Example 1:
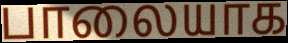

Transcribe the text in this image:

பாலையாக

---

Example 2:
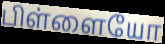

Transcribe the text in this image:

பிள்ளையோ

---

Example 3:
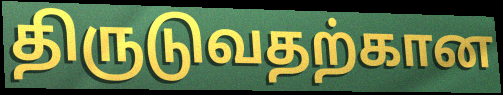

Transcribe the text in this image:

திருடுவதற்கான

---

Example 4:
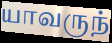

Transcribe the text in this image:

யாவருந்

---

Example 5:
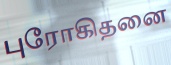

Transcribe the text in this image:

புரோகிதனை